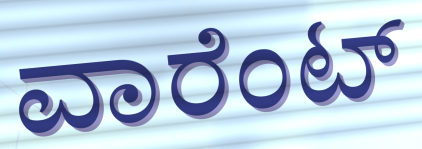
ವಾರೆಂಟ್